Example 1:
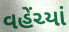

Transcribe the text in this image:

વહેંચ્યાં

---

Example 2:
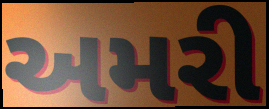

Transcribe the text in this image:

અમરી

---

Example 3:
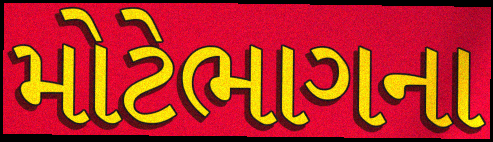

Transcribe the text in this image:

મોટેભાગના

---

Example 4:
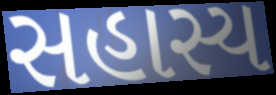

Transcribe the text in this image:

સહાસ્ય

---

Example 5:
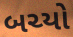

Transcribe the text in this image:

બચ્યો